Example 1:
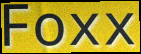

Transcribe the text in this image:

Foxx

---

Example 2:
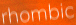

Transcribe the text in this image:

rhombic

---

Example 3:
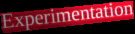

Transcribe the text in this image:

Experimentation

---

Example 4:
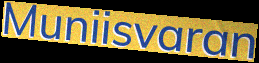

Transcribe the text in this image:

Muniisvaran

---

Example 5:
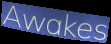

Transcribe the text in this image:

Awakes